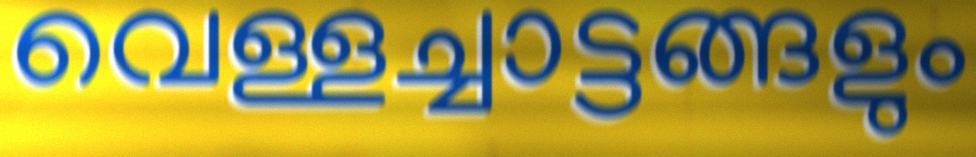
വെള്ളച്ചാട്ടങ്ങളും